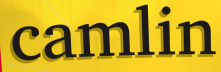
camlin